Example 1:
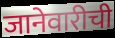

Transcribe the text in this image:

जानेवारीची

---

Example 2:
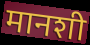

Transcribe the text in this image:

मानशी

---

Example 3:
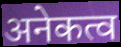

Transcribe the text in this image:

अनेकत्व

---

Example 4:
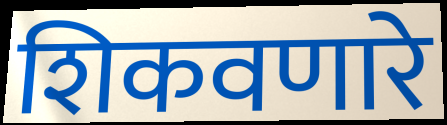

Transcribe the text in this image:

शिकवणारे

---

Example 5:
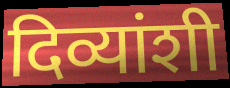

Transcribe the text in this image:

दिव्यांशी